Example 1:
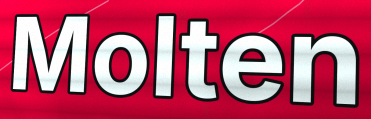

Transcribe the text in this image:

Molten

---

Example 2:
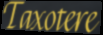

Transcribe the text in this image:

Taxotere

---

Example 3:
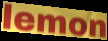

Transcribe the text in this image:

lemon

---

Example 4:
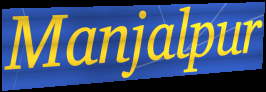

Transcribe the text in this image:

Manjalpur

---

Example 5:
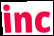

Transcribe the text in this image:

inc